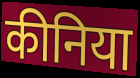
कीनिया